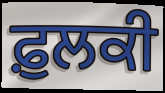
ਫ਼ੁਲਕੀ